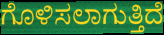
ಗೊಳಿಸಲಾಗುತ್ತಿದೆ